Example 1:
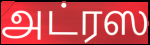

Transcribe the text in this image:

அட்ரஸ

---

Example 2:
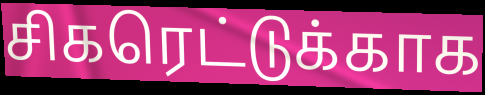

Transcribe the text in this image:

சிகரெட்டுக்காக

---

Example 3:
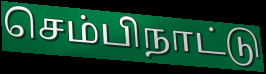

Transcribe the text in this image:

செம்பிநாட்டு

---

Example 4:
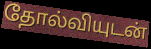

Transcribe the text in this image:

தோல்வியுடன்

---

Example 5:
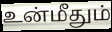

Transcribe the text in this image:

உன்மீதும்